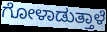
ಗೋಳಾಡುತ್ತಾಳೆ